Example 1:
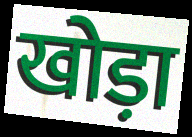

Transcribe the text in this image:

खोड़ा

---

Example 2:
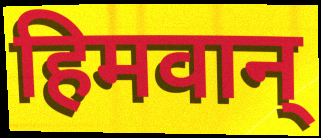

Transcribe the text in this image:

हिमवान्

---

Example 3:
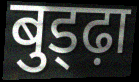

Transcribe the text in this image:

बुड्ढ़ा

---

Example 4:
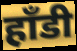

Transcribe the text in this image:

हाँडी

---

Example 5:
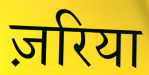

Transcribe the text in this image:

ज़रिया